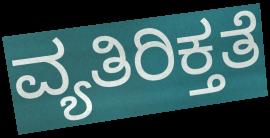
ವ್ಯತಿರಿಕ್ತತೆ